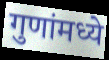
गुणांमध्ये